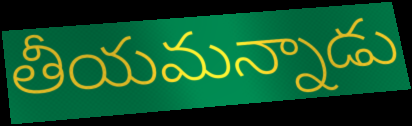
తీయమన్నాడు